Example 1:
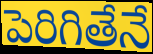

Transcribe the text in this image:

పెరిగితేనే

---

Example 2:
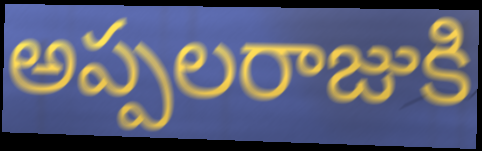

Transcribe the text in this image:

అప్పలరాజుకి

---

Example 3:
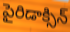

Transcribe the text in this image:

పైరిడాక్సిన్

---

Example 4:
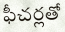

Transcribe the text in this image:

ఫీచర్లతో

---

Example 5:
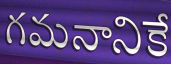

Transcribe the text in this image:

గమనానికే